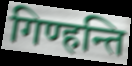
गिण्हन्ति